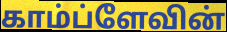
காம்ப்ளேவின்